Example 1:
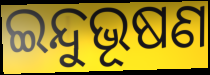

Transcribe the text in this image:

ଇନ୍ଦୁଭୂଷଣ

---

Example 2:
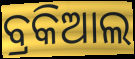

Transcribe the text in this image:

ବ୍ରକିଆଲ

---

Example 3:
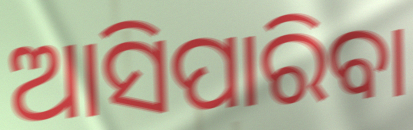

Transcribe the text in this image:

ଆସିପାରିବା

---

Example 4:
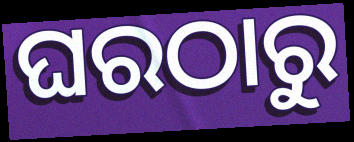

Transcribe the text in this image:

ଘରଠାରୁ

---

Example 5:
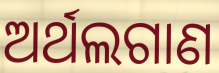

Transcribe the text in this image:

ଅର୍ଥଲଗାଣ